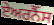
ਏਅਰਨੈੱਸ